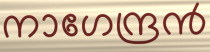
നാഗേന്ദ്രൻ